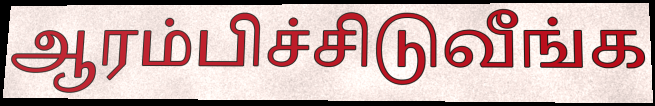
ஆரம்பிச்சிடுவீங்க